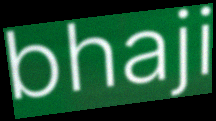
bhaji